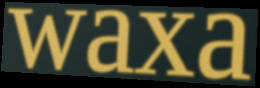
waxa